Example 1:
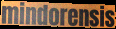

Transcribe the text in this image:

mindorensis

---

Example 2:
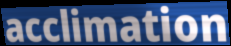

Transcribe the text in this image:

acclimation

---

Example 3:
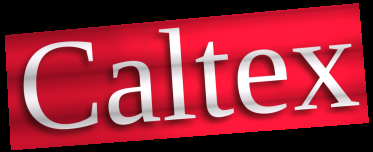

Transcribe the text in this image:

Caltex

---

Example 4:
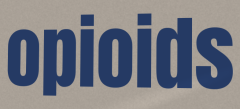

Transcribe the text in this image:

opioids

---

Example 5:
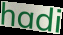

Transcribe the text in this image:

hadi